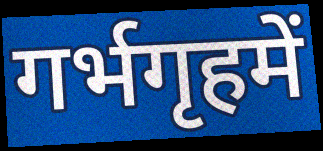
गर्भगृहमें